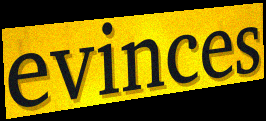
evinces